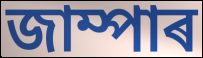
জাম্পাৰ